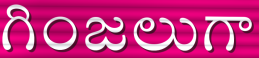
గింజలుగా